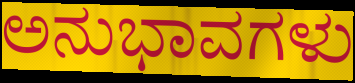
ಅನುಭಾವಗಳು